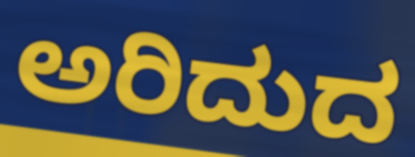
ಅರಿದುದ